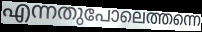
എന്നതുപോലെത്തന്നെ